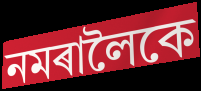
নমৰালৈকে